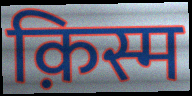
क़िस्म